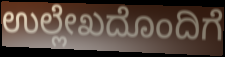
ಉಲ್ಲೇಖದೊಂದಿಗೆ